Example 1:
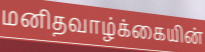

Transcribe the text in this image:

மனிதவாழ்க்கையின்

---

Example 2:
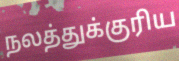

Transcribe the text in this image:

நலத்துக்குரிய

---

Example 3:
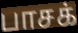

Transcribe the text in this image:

பாசக்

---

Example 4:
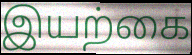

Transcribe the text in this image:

இயற்கை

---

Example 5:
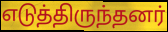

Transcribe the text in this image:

எடுத்திருந்தனர்